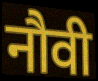
नौवी